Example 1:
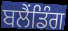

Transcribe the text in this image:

ਬਲੈਂਡਿੰਗ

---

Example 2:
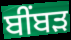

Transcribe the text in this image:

ਬੀਂਬੜ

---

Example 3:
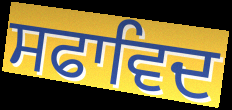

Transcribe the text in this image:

ਸਫਾਵਿਦ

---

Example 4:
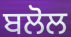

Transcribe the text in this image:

ਬਲੋਲ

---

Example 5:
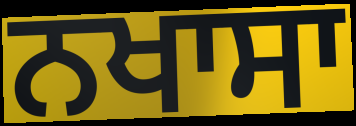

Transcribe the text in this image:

ਨਖਾਸਾ